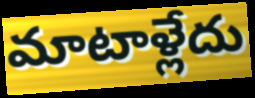
మాటాళ్లేదు